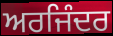
ਅਰਜਿੰਦਰ